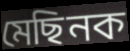
মেছিনক